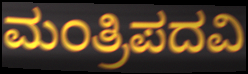
ಮಂತ್ರಿಪದವಿ